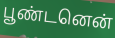
பூண்டனென்